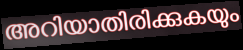
അറിയാതിരിക്കുകയും